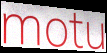
motu